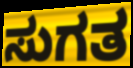
ಸುಗತ